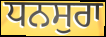
ਧਨਸੁਰਾ